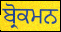
ਬ੍ਰੋਕਮਨ